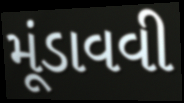
મૂંડાવવી